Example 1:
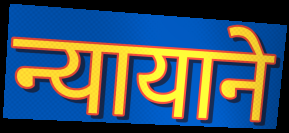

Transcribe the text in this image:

न्यायाने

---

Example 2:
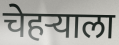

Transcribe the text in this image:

चेहऱ्याला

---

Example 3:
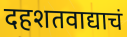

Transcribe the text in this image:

दहशतवाद्याचं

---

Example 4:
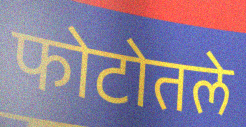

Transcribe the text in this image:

फोटोतले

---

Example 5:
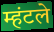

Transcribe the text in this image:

म्हंटले